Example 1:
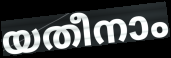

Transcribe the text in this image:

യതീനാം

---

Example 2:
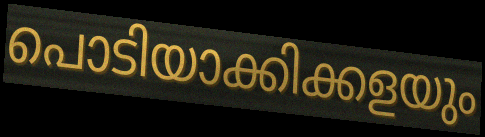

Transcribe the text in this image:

പൊടിയാക്കിക്കളയും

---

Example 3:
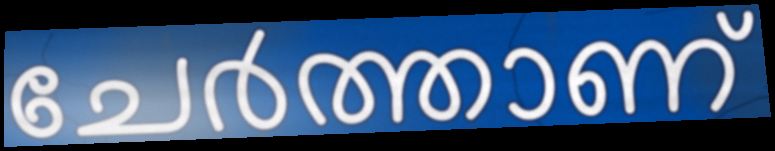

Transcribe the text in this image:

ചേർത്താണ്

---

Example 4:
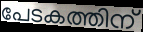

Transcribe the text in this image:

പേടകത്തിന്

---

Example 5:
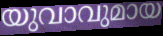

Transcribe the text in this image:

യുവാവുമായ